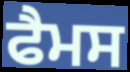
ਫੈਮਸ